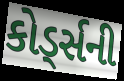
કોર્ડ્સની